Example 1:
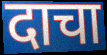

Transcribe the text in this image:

दाचा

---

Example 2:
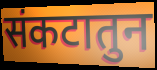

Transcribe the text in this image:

संकटातुन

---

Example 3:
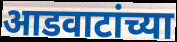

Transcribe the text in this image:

आडवाटांच्या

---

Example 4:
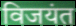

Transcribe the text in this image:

विजयंत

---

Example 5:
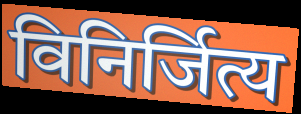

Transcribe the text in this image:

विनिर्जित्य